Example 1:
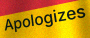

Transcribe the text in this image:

Apologizes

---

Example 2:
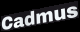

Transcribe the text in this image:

Cadmus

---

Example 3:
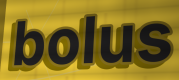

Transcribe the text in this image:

bolus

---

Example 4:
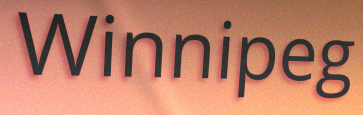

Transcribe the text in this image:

Winnipeg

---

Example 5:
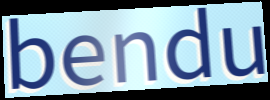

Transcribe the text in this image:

bendu